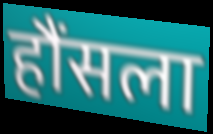
हौंसला